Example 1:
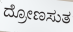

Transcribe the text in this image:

ದ್ರೋಣಸುತ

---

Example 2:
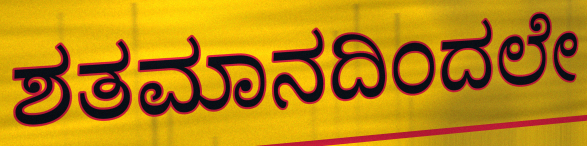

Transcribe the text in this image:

ಶತಮಾನದಿಂದಲೇ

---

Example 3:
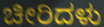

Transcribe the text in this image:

ಚೀರಿದಳು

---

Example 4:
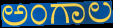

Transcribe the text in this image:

ಅಂಗಾಲ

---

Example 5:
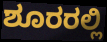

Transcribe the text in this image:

ಶೂರರಲ್ಲಿ